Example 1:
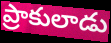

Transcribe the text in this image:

ప్రాకులాడు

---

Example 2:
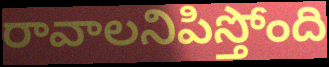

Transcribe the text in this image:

రావాలనిపిస్తోంది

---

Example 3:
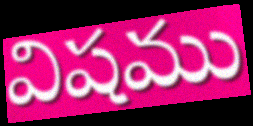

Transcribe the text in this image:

విషము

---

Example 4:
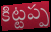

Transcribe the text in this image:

కిట్టప్ప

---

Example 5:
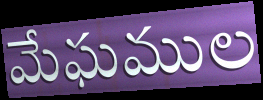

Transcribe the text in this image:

మేఘముల